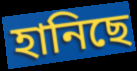
হানিছে